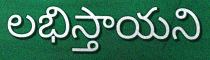
లభిస్తాయని